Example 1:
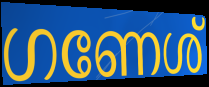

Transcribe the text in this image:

ഗണേശ്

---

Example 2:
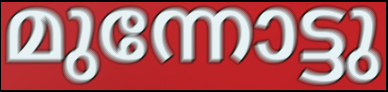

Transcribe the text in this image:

മുന്നോട്ടു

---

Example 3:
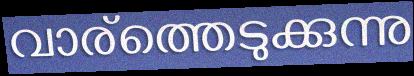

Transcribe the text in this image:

വാര്ത്തെടുക്കുന്നു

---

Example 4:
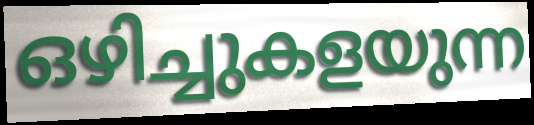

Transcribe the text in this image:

ഒഴിച്ചുകളയുന്ന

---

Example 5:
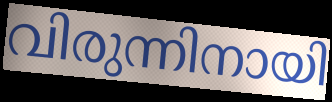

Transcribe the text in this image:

വിരുന്നിനായി